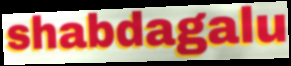
shabdagalu